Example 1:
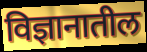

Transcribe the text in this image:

विज्ञानातील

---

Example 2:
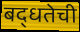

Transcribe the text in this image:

बद्धतेची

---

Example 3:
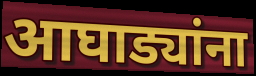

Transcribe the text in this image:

आघाड्यांना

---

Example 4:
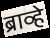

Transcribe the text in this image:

ब्राव्हे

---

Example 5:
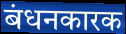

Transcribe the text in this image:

बंधनकारक